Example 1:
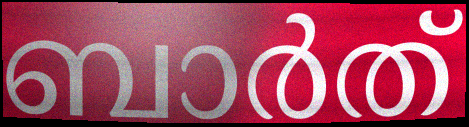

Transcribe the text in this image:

ബാർത്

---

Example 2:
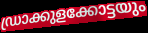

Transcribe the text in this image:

ഡ്രാക്കുളക്കോട്ടയും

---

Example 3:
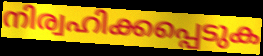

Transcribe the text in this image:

നിര്വഹിക്കപ്പെടുക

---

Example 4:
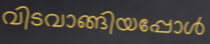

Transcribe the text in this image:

വിടവാങ്ങിയപ്പോൾ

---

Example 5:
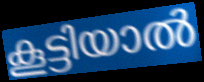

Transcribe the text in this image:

കൂട്ടിയാൽ